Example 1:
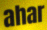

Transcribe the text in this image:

ahar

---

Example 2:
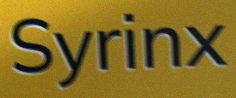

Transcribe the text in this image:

Syrinx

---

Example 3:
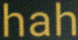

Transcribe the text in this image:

hah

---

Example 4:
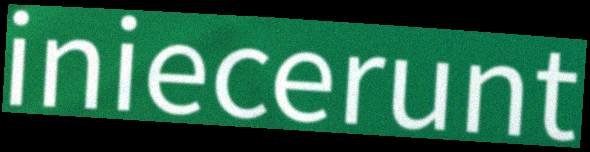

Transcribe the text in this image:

iniecerunt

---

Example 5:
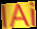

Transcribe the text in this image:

IAi